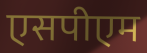
एसपीएम